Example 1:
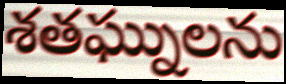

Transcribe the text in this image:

శతఘ్నులను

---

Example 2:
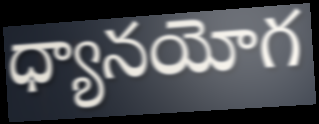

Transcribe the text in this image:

ధ్యానయోగ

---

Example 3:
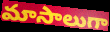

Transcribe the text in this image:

మాసాలుగా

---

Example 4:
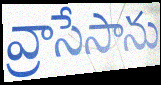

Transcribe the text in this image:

వ్రాసేసాను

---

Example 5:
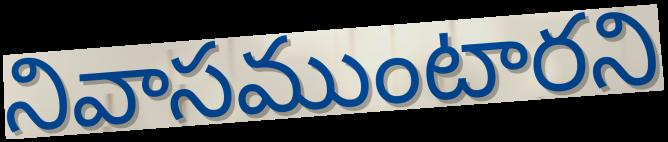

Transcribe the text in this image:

నివాసముంటారని